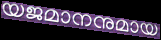
യജമാനനുമായ